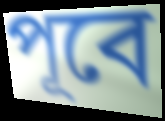
পূবে